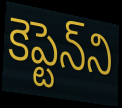
కెప్టెన్‌ని